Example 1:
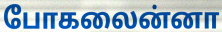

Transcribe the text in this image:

போகலைன்னா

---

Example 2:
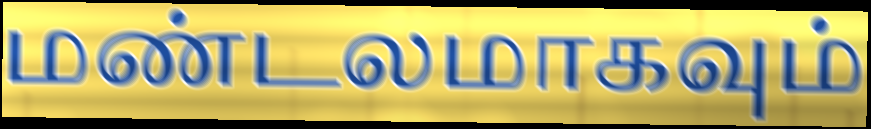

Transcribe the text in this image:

மண்டலமாகவும்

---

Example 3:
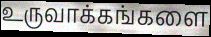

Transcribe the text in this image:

உருவாக்கங்களை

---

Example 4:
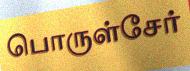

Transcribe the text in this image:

பொருள்சேர்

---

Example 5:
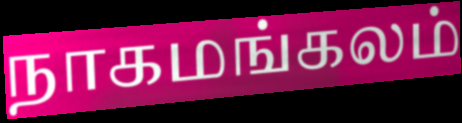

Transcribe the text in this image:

நாகமங்கலம்